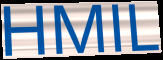
HMIL